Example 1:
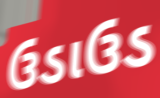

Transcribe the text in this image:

ઉડાઉડ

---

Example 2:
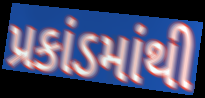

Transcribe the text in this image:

પ્રકાંડમાંથી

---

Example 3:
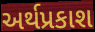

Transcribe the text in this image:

અર્થપ્રકાશ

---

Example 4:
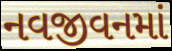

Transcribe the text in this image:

નવજીવનમાં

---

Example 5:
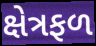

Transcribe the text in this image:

ક્ષેત્રફળ